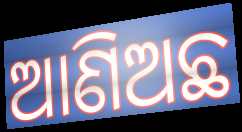
ଆଣିଅଛ